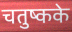
चतुष्कके